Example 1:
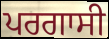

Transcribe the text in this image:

ਪਰਗਾਸੀ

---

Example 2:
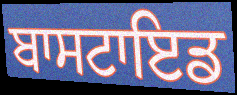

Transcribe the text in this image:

ਬਾਸਟਾਇਡ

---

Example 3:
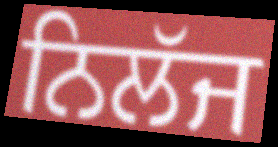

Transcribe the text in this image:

ਨਿਲੱਜ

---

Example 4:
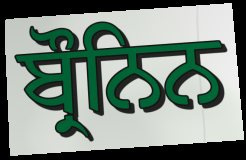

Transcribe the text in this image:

ਬ੍ਰੌਨਿਨ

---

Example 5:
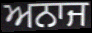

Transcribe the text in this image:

ਅਨਾਜ